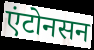
एंटोनसन